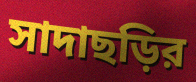
সাদাছড়ির